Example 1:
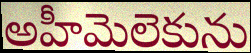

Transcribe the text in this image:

అహీమెలెకును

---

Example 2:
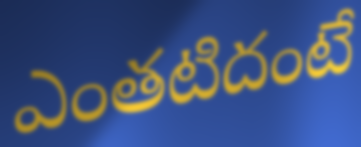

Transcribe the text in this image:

ఎంతటిదంటే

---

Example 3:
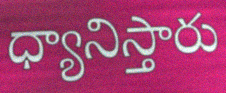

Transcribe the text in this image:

ధ్యానిస్తారు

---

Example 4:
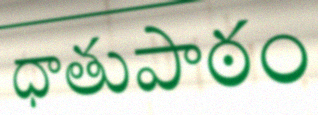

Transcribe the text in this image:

ధాతుపాఠం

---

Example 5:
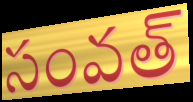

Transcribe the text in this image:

సంవత్